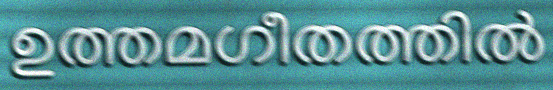
ഉത്തമഗീതത്തിൽ